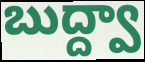
బుద్ద్వా